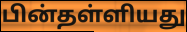
பின்தள்ளியது